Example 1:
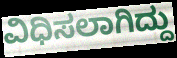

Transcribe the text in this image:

ವಿಧಿಸಲಾಗಿದ್ದು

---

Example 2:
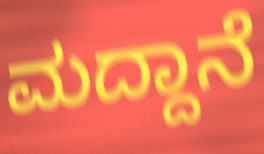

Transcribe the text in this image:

ಮದ್ದಾನೆ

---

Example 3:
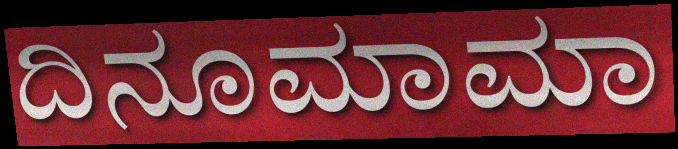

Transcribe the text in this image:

ದಿನೂಮಾಮಾ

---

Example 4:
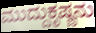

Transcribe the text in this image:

ಮುದ್ದುಕೃಷ್ಣನು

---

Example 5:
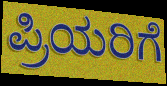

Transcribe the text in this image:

ಪ್ರಿಯರಿಗೆ